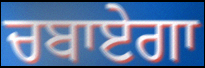
ਚਬਾਏਗਾ